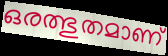
ഒരത്ഭുതമാണ്